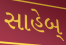
સાહેબ્